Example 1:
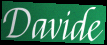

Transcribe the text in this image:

Davide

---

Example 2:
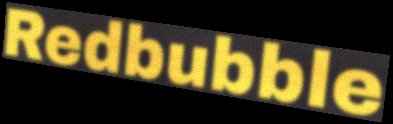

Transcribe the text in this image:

Redbubble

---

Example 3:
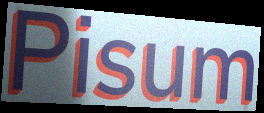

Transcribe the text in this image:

Pisum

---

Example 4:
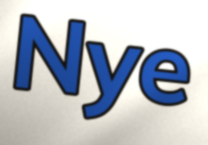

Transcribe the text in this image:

Nye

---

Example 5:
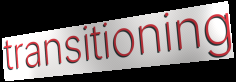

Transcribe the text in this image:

transitioning